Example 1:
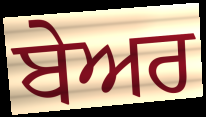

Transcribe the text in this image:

ਬੇਅਰ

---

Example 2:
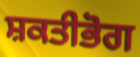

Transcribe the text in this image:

ਸ਼ਕਤੀਭੋਗ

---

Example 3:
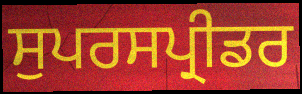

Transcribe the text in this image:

ਸੁਪਰਸਪ੍ਰੀਡਰ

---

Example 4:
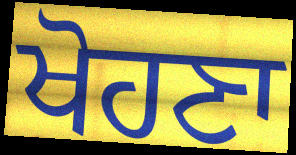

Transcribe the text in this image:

ਖੋਹਣਾ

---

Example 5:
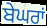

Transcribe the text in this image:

ਬੇਘਰਾਂ